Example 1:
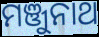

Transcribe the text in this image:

ମଞ୍ଜୁନାଥ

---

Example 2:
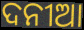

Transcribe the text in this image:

ଦନୀଆ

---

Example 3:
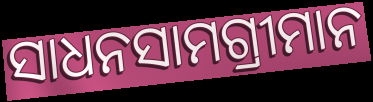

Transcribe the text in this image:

ସାଧନସାମଗ୍ରୀମାନ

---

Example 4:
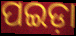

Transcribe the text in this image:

ପଇଡ଼ା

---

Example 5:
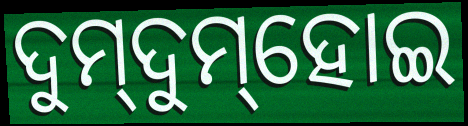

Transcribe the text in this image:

ଦୁମ୍‌ଦୁମ୍‌ହୋଇ